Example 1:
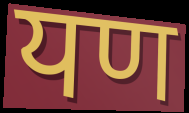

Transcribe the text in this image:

यण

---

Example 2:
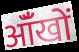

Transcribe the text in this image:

ऑँखों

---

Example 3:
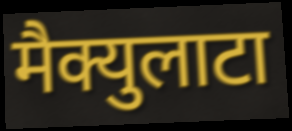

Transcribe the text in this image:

मैक्युलाटा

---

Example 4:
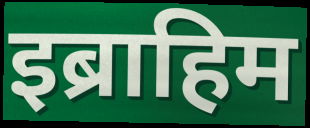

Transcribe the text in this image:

इब्राहिम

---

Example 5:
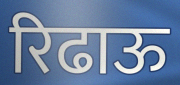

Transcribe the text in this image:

रिढाऊ